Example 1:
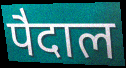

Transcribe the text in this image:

पैदाल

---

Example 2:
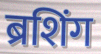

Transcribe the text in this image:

ब्रशिंग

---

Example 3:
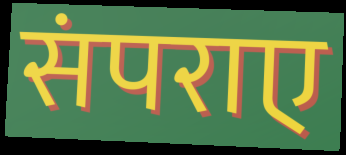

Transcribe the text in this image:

संपराए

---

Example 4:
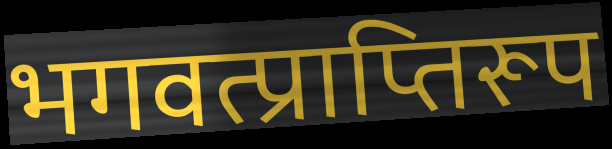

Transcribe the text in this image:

भगवत्प्राप्तिरूप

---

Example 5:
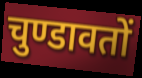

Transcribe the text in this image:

चुण्डावतों